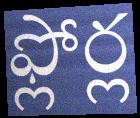
ఫ్లోర్ల